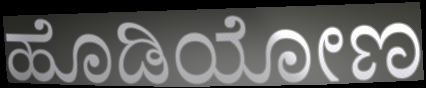
ಹೊಡಿಯೋಣ